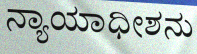
ನ್ಯಾಯಾಧೀಶನು